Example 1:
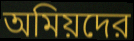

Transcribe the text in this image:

অমিয়দের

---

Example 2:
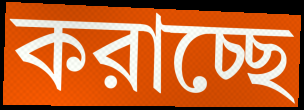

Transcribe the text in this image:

করাচ্ছে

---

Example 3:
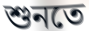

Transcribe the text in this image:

শুনতে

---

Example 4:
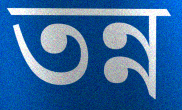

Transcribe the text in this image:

তন্ন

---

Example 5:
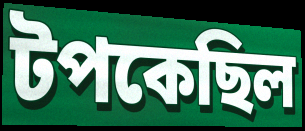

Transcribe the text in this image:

টপকেছিল